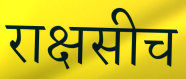
राक्षसीच